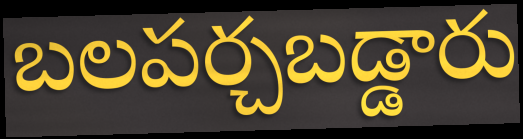
బలపర్చబడ్డారు